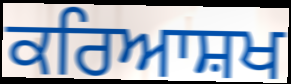
ਕਰਿਆਸ਼ਖ